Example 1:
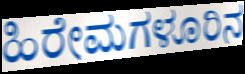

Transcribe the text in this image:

ಹಿರೇಮಗಳೂರಿನ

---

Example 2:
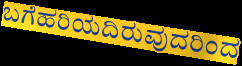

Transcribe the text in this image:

ಬಗೆಹರಿಯದಿರುವುದರಿಂದ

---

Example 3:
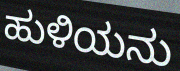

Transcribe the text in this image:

ಹುಳಿಯನು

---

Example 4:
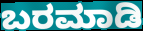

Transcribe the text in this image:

ಬರಮಾಡಿ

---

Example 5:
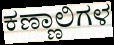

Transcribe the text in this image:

ಕಣ್ಣಾಲಿಗಳ